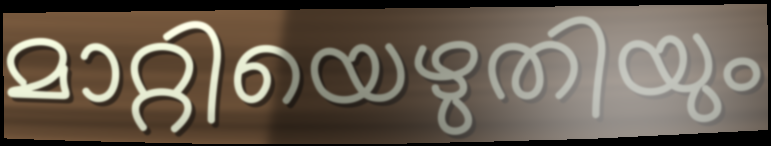
മാറ്റിയെഴുതിയും